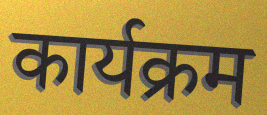
कार्यक्रम